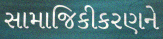
સામાજિકીકરણને